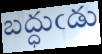
బద్ధుఁడు